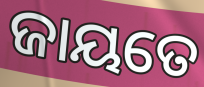
ଜାୟତେ